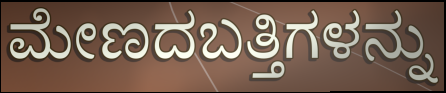
ಮೇಣದಬತ್ತಿಗಳನ್ನು